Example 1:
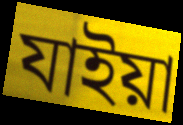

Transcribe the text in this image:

যাইয়া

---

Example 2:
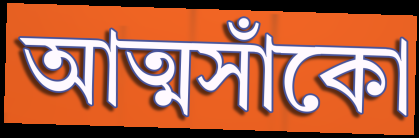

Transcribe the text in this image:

আত্মসাঁকো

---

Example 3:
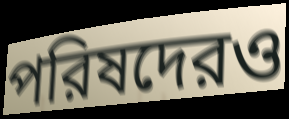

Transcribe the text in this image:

পরিষদেরও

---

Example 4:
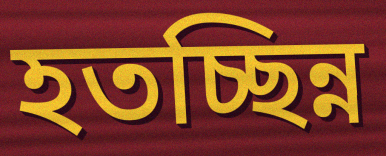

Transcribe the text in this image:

হতচ্ছিন্ন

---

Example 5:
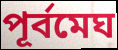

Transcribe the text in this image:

পূর্বমেঘ